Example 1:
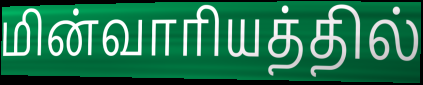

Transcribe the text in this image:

மின்வாரியத்தில்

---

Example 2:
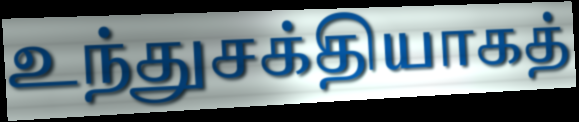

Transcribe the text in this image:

உந்துசக்தியாகத்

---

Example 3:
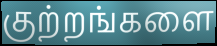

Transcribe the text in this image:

குற்றங்களை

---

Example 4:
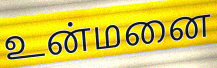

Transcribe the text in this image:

உன்மனை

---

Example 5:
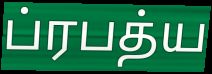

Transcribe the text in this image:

ப்ரபத்ய